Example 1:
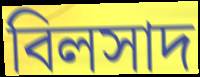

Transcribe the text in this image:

বিলসাদ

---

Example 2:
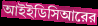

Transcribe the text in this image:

আইইডিসিআরের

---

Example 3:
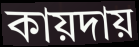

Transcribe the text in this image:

কায়দায়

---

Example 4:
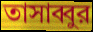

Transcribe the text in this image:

তাসাব্বুর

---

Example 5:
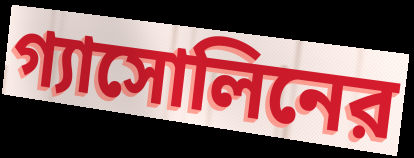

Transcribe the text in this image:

গ্যাসোলিনের